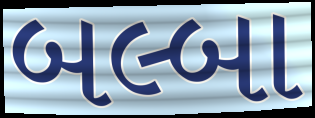
બલ્બા